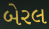
બેરલ